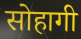
सोहागी